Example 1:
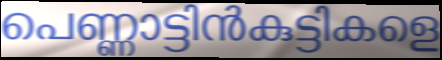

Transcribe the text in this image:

പെണ്ണാട്ടിൻകുട്ടികളെ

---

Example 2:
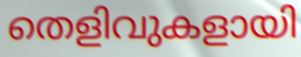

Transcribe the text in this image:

തെളിവുകളായി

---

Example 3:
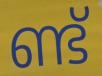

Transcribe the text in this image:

ണ്ട്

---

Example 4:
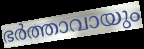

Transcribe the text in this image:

ഭർത്താവായും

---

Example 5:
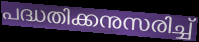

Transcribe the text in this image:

പദ്ധതിക്കനുസരിച്ച്